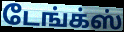
டேங்க்ஸ்